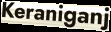
Keraniganj